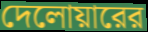
দেলোয়ারের